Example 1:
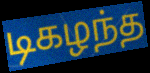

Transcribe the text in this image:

டிகழந்த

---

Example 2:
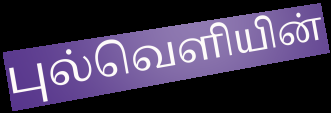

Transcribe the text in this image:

புல்வெளியின்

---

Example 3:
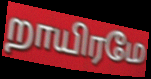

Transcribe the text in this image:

றாயிரமே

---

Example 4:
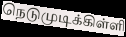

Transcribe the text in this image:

நெடுமுடிக்கிள்ளி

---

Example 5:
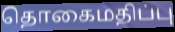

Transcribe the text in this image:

தொகைமதிப்பு